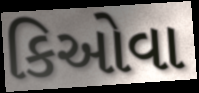
કિઓવા